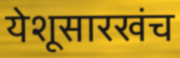
येशूसारखंच